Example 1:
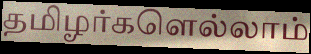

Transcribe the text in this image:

தமிழர்களெல்லாம்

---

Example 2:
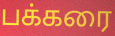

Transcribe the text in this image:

பக்கரை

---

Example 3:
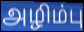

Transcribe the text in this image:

அழிம்பு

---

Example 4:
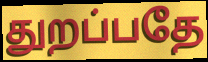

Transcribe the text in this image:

துறப்பதே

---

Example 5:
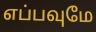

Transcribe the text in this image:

எப்பவுமே